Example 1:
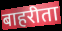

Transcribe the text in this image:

बाहरीता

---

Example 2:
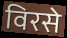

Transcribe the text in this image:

विरसे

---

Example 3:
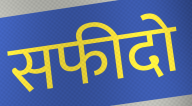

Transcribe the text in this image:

सफीदो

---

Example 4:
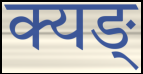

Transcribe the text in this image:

क्यङ्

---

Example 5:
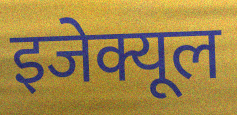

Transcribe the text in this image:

इजेक्यूल